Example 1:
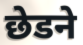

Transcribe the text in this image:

छेडने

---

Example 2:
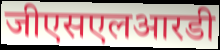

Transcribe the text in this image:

जीएसएलआरडी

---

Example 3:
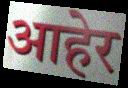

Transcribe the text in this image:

आहेर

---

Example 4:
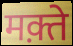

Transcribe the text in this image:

मक़्ते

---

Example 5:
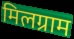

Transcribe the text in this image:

मिलग्राम